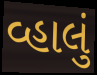
વ્હાલું